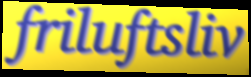
friluftsliv